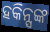
ହକିନ୍ସଙ୍କ